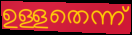
ഉള്ളതെന്ന്